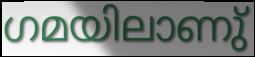
ഗമയിലാണു്